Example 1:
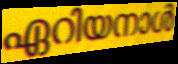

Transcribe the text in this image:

ഏറിയനാൾ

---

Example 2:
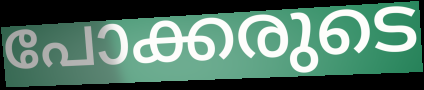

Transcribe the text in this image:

പോക്കരുടെ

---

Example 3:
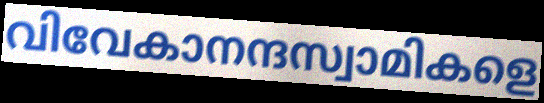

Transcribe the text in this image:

വിവേകാനന്ദസ്വാമികളെ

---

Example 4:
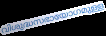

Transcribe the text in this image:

വിശുദ്ധസഭായോഗമുള്ള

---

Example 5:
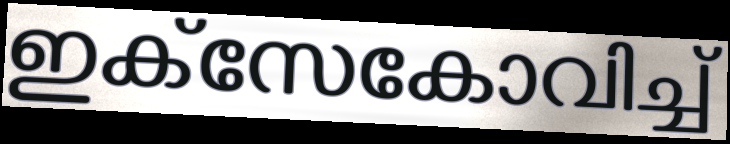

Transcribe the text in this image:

ഇക്‌സേകോവിച്ച്